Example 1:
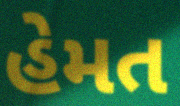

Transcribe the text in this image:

હેમત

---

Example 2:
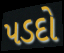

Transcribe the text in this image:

પડદો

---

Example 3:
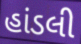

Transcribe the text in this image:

હાંડલી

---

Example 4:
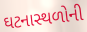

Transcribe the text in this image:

ઘટનાસ્થળોની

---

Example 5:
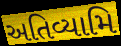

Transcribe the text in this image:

અતિવ્યામિ